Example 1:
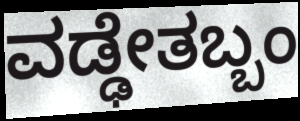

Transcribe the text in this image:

ವಡ್ಢೇತಬ್ಬಂ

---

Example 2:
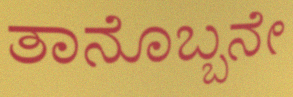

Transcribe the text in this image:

ತಾನೊಬ್ಬನೇ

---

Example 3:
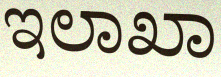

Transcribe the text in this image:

ಇಲಾಖಾ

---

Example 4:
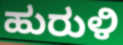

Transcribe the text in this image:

ಹುರುಳಿ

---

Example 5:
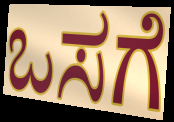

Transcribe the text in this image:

ಒಸಗೆ